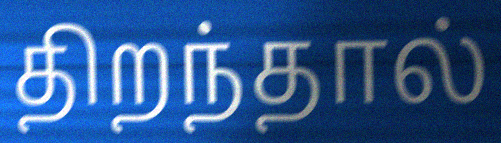
திறந்தால்